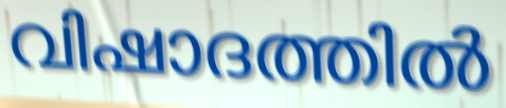
വിഷാദത്തിൽ